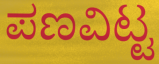
ಪಣವಿಟ್ಟ